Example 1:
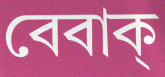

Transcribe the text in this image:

বেবাক্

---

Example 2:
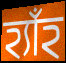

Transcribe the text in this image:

হ্যাঁহ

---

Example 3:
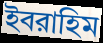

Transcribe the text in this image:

ইবরাহিম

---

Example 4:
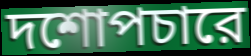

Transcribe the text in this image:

দশোপচারে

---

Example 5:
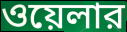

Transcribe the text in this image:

ওয়েলার